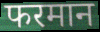
फरमान